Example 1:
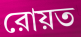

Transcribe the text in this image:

রোয়ত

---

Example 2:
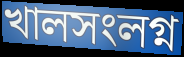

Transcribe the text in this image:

খালসংলগ্ন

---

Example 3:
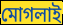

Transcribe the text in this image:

মোগলাই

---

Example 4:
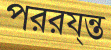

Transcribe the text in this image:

পররয্ন্ত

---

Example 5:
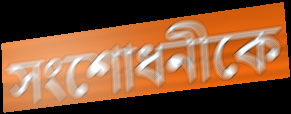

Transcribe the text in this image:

সংশোধনীকে